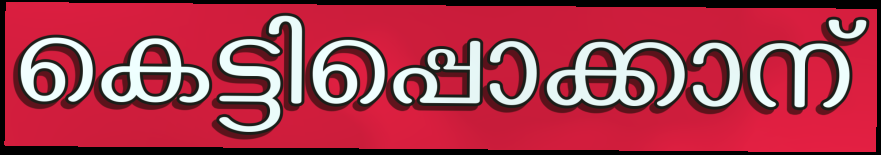
കെട്ടിപ്പൊക്കാന്